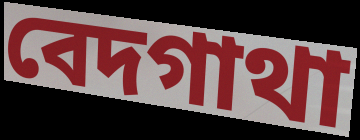
বেদগাথা